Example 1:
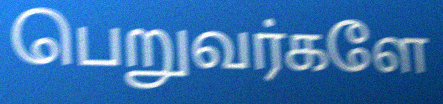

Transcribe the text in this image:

பெறுவர்களே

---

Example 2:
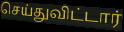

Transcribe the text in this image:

செய்துவிட்டார்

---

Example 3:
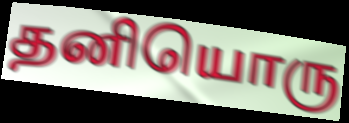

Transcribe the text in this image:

தனியொரு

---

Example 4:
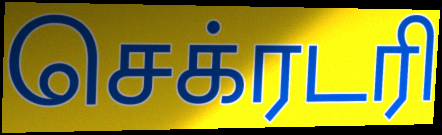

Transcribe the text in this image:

செக்ரடரி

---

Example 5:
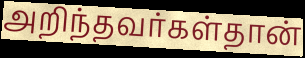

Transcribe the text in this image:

அறிந்தவர்கள்தான்